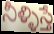
నీళ్ళిస్తే